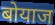
बोयाज